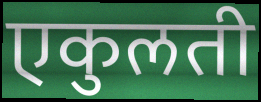
एकुलती